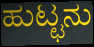
ಹುಟ್ಟನು